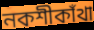
নকশীকাঁথা